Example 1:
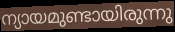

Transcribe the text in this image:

ന്യായമുണ്ടായിരുന്നു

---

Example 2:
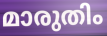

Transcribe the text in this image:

മാരുതിം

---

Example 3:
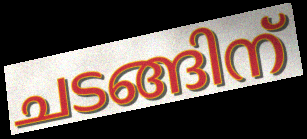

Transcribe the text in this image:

ചടങ്ങിന്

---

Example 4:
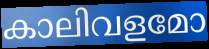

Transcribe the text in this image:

കാലിവളമോ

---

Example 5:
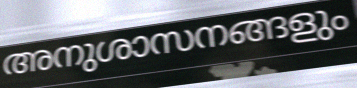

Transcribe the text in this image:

അനുശാസനങ്ങളും